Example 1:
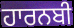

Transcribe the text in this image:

ਹਾਰਨਬੀ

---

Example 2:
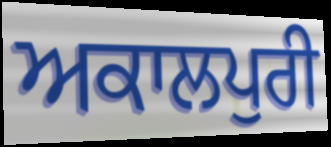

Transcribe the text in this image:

ਅਕਾਲਪੁਰੀ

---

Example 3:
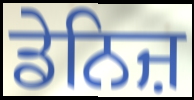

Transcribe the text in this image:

ਡੇਨਿਜ਼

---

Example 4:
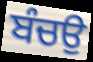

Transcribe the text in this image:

ਬੰਚਉ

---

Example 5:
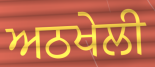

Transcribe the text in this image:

ਅਠਖੇਲੀ